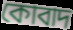
কোবাদ